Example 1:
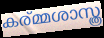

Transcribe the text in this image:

കര്മ്മശാസ്ത്ര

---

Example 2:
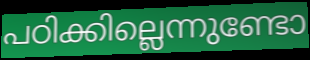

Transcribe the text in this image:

പഠിക്കില്ലെന്നുണ്ടോ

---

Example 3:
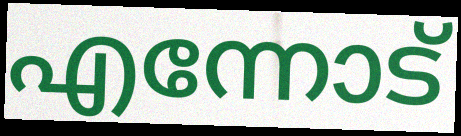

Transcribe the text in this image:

എന്നോട്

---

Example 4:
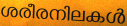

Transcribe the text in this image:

ശരീരനിലകൾ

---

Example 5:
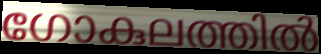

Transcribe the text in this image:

ഗോകുലത്തിൽ